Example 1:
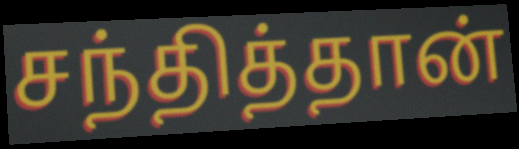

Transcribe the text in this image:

சந்தித்தான்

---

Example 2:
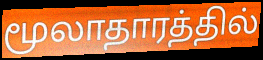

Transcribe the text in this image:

மூலாதாரத்தில்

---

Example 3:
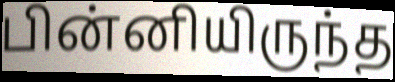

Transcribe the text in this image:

பின்னியிருந்த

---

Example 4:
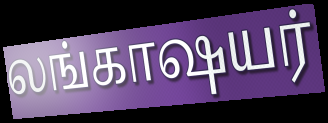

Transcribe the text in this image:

லங்காஷயர்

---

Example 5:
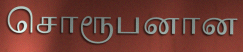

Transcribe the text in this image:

சொரூபனான